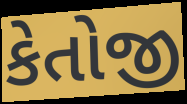
કેતોજી